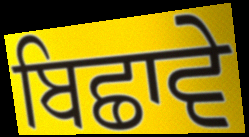
ਬਿਛਾਵੇ